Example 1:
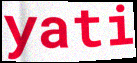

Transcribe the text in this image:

yati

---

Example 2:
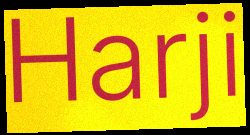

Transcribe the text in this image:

Harji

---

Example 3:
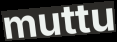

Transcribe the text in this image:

muttu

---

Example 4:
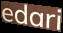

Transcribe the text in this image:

edari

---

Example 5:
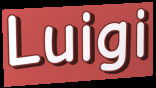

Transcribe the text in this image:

Luigi